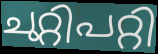
ചുറ്റിപറ്റി